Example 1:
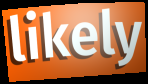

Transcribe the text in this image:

likely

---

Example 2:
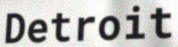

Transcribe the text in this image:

Detroit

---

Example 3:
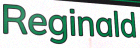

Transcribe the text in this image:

Reginald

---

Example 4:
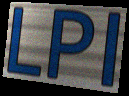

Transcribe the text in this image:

LPI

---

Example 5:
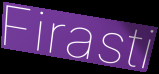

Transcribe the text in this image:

Firasti